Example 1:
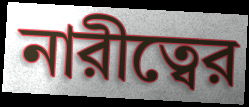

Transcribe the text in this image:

নারীত্বের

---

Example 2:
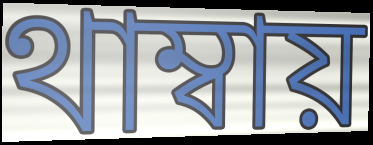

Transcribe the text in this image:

থাম্বায়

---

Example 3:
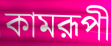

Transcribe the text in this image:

কামরূপী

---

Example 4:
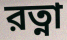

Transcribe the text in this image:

রত্না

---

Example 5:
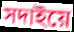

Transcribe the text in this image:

সদাইয়ে